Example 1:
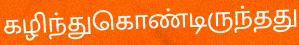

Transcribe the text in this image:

கழிந்துகொண்டிருந்தது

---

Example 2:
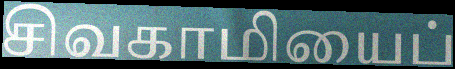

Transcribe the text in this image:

சிவகாமியைப்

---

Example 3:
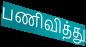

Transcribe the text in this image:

பணிவித்து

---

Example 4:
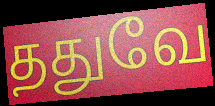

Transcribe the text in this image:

ததுவே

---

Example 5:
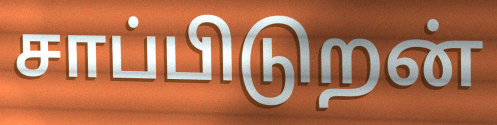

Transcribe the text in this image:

சாப்பிடுறன்